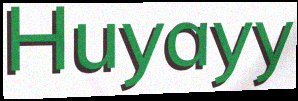
Huyayy